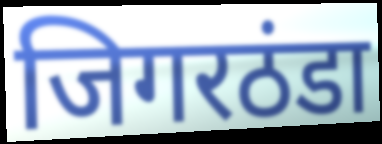
जिगरठंडा